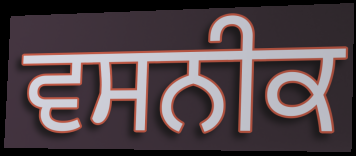
ਵਸਨੀਕ